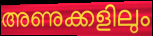
അണുക്കളിലും